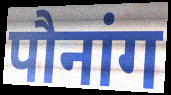
पौनांग